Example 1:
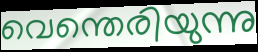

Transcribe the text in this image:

വെന്തെരിയുന്നു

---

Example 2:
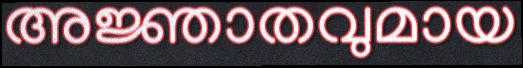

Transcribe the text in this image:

അജ്ഞാതവുമായ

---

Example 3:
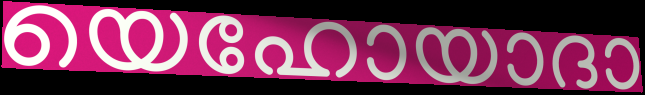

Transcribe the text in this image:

യെഹോയാദാ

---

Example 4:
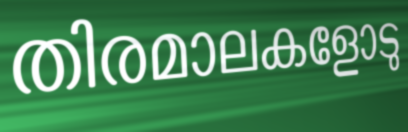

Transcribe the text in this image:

തിരമാലകളോടു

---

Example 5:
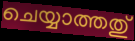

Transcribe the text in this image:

ചെയ്യാത്തതു്